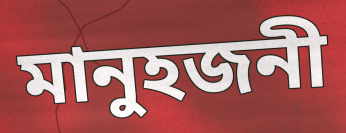
মানুহজনী